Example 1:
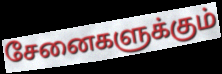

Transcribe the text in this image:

சேனைகளுக்கும்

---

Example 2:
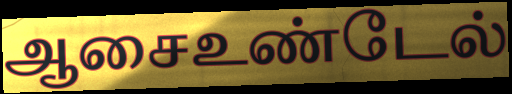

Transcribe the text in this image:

ஆசைஉண்டேல்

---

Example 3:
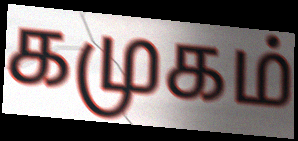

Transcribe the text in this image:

கமுகம்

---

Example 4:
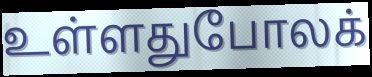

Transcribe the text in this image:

உள்ளதுபோலக்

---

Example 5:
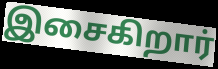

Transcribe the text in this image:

இசைகிறார்